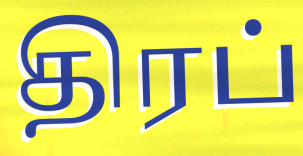
திரப்